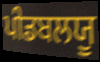
ਪੀਡਬਲਯੂ